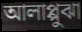
আলাপ্পুঝা